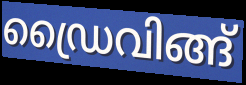
ഡ്രൈവിങ്ങ്